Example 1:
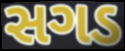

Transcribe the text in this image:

સગડ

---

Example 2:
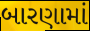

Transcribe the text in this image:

બારણામાં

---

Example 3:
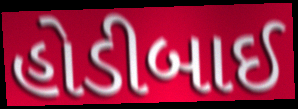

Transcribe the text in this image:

હોડીબાઈ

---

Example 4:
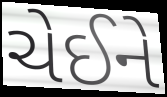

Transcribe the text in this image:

ચેઈને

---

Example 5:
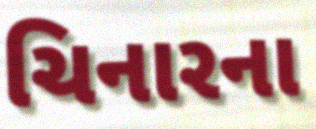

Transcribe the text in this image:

ચિનારના